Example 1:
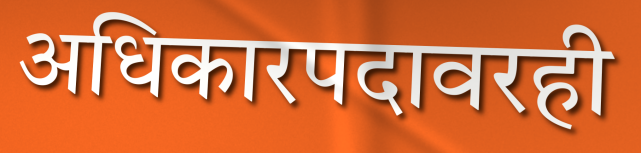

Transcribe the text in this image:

अधिकारपदावरही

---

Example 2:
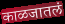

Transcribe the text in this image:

काळजातलं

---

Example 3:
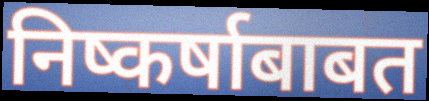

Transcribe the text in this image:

निष्कर्षाबाबत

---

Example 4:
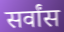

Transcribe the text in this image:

सर्वांस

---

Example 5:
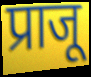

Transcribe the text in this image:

प्राजू